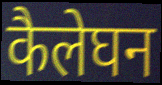
कैलेघन